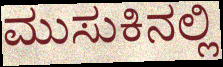
ಮುಸುಕಿನಲ್ಲಿ